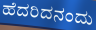
ಹೆದರಿದನಂದು